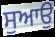
ਸੁਆਉ